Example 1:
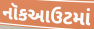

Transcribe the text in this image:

નૉકઆઉટમાં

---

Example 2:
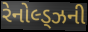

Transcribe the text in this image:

રેનોલ્ડ્ઝની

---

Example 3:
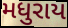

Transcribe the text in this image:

મધુરાય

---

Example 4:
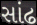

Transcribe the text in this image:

સાંઢ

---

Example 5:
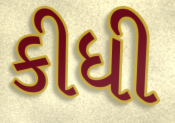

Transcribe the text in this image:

કીધી